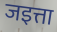
जइत्ता